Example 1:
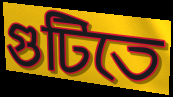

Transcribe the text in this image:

গুটিতে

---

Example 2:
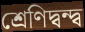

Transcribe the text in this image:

শ্রেণিদ্বন্দ্ব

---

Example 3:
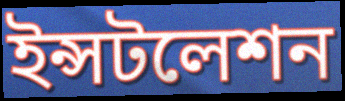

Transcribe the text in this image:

ইন্সটলেশন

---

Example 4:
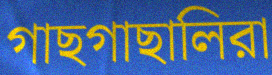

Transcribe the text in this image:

গাছগাছালিরা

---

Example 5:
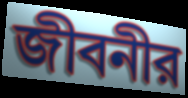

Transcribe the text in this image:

জীবনীর